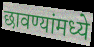
छावण्यांमध्ये